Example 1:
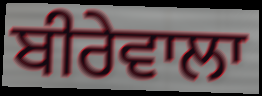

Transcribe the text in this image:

ਬੀਰੇਵਾਲਾ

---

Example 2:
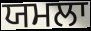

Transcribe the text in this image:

ਯਮਲਾ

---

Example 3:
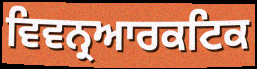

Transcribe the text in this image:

ਵਿਵਨ੍ਰਆਰਕਟਿਕ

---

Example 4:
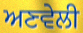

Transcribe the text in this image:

ਅਣਵੇਲੀ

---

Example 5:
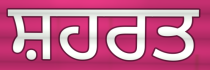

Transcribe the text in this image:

ਸ਼ਹਰਤ